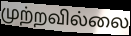
முற்றவில்லை